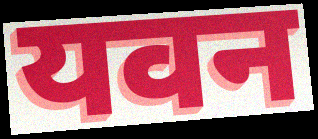
यवन